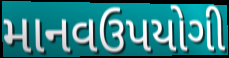
માનવઉપયોગી